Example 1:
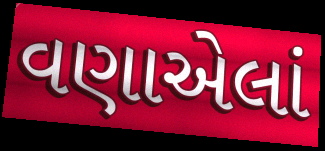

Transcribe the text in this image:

વણાએલાં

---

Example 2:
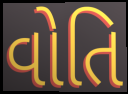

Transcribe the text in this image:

વોતિ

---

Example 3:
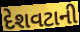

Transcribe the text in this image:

દેશવટાની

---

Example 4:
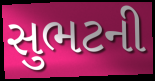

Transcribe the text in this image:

સુભટની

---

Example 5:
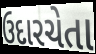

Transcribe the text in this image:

ઉદારચેતા